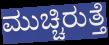
ಮುಚ್ಚಿರುತ್ತೆ